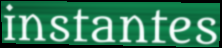
instantes